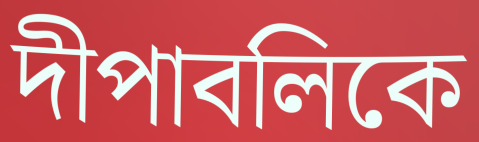
দীপাবলিকে